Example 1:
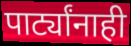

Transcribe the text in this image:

पार्ट्यांनाही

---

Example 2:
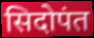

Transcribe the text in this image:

सिदोपंत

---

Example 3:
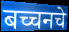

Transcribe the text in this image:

बच्चनचे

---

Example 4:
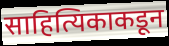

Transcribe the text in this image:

साहित्यिकाकडून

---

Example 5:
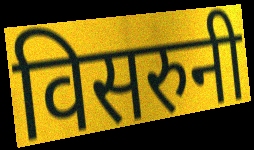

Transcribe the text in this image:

विसरुनी